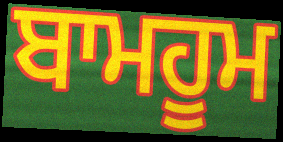
ਬਾਮਹੂਮ